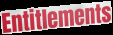
Entitlements